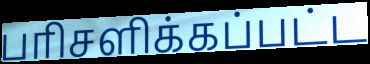
பரிசளிக்கப்பட்ட